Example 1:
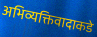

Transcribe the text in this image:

अभिव्यक्तिवादाकडे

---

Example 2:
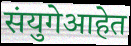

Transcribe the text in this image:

संयुगेआहेत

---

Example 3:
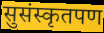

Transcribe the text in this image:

सुसंस्कृतपण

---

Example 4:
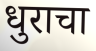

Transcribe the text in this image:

धुराचा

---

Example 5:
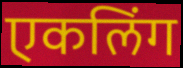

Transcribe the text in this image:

एकलिंग